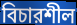
বিচারশীল